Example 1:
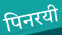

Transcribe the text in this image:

पिनरयी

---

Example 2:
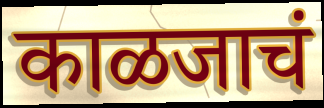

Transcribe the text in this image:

काळजाचं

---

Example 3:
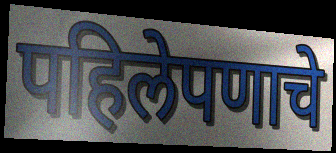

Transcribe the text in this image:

पहिलेपणाचे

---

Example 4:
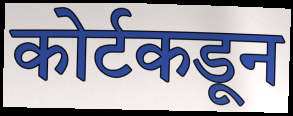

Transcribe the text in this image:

कोर्टकडून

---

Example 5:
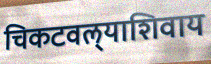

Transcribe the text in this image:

चिकटवल्याशिवाय